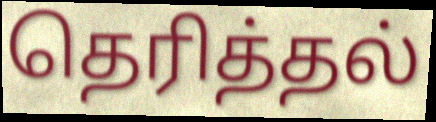
தெரித்தல்